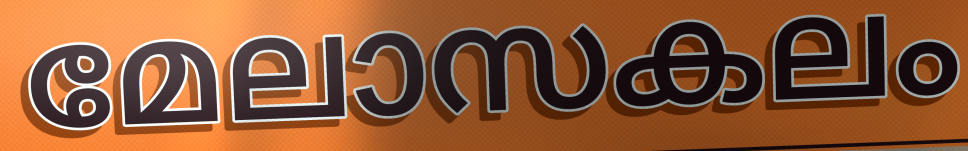
മേലാസകലം